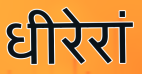
धीरेरां